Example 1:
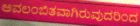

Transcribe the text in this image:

ಅವಲಂಬಿತವಾಗಿರುವುದರಿಂದ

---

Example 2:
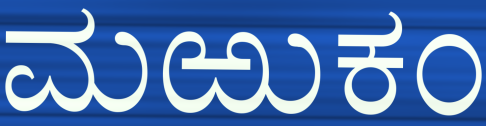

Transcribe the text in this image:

ಮಱುಕಂ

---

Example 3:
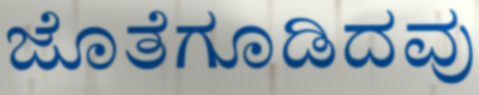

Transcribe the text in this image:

ಜೊತೆಗೂಡಿದವು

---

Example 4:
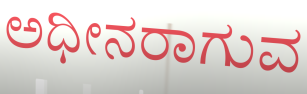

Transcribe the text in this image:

ಅಧೀನರಾಗುವ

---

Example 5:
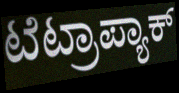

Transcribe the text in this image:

ಟೆಟ್ರಾಪ್ಯಾಕ್